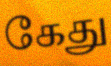
கேது